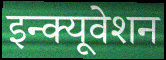
इन्क्यूवेशन